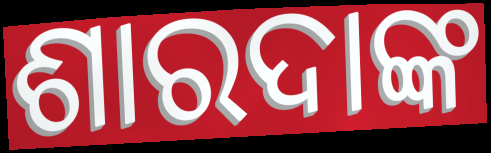
ଶାରଦାଙ୍କ